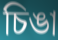
চিঙা